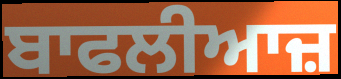
ਬਾਫਲੀਆਜ਼